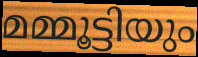
മമ്മൂട്ടിയും